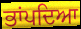
ਭਾਂਪਦਿਆ